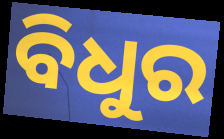
ବିଧୁର